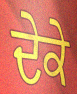
ਦੇਕੇ